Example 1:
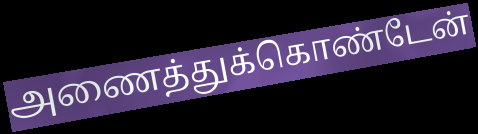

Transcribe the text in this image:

அணைத்துக்கொண்டேன்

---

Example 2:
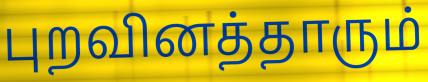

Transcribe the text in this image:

புறவினத்தாரும்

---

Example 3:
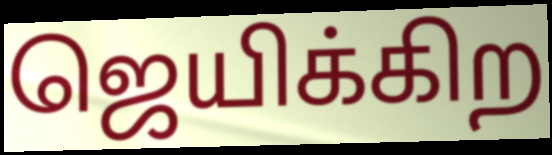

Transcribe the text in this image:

ஜெயிக்கிற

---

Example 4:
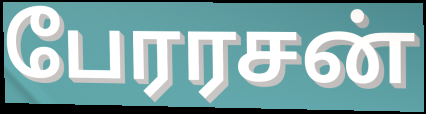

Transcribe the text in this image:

பேரரசன்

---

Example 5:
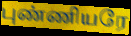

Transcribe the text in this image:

புண்ணியரே